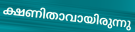
ക്ഷണിതാവായിരുന്നു